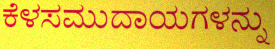
ಕೆಳಸಮುದಾಯಗಳನ್ನು